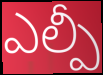
ఎల్పీ